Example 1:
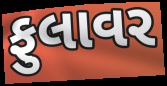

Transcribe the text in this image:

ફુલાવર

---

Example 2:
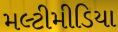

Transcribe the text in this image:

મલ્ટીમીડિયા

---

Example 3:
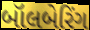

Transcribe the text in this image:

બૉલબેરિંગ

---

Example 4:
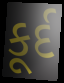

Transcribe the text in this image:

કૂર્દ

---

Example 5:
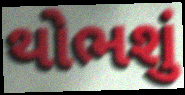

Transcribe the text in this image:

થોભશું